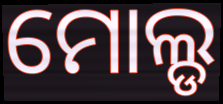
ମୋଲ୍ଡ